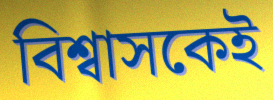
বিশ্বাসকেই